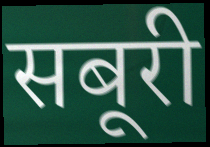
सबूरी